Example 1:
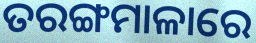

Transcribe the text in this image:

ତରଙ୍ଗମାଳାରେ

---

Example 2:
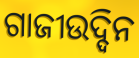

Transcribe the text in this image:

ଗାଜୀଉଦ୍ଦିନ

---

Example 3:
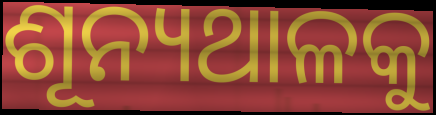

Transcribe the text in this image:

ଶୂନ୍ୟଥାଳକୁ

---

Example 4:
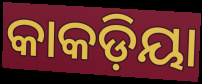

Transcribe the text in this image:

କାକଡ଼ିୟା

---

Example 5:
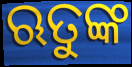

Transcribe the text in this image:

ଋତୁଙ୍କ